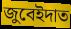
জুবেইদাত